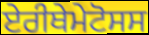
ਏਰੀਥੇਮੇਟੋਸਸ